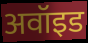
अवॉइड